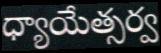
ధ్యాయేత్సర్వ